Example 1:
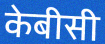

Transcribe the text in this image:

केबीसी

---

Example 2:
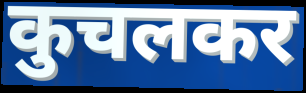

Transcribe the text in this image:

कुचलकर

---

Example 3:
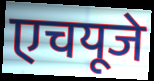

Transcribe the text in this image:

एचयूजे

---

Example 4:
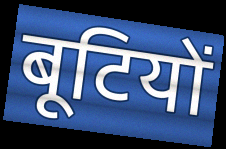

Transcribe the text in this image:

बूटियों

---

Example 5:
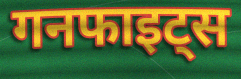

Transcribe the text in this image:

गनफाइट्स